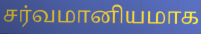
சர்வமானியமாக